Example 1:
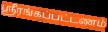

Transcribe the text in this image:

ஸ்ரீரங்கப்பட்டணம்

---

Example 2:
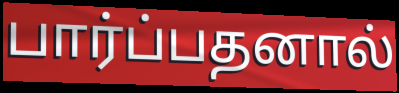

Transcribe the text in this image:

பார்ப்பதனால்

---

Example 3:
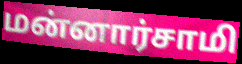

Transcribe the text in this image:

மன்னார்சாமி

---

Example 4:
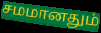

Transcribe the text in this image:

சமமானதும்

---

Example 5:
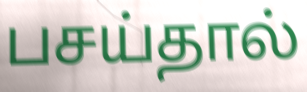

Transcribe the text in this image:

பசய்தால்